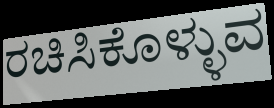
ರಚಿಸಿಕೊಳ್ಳುವ